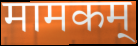
मामकम्